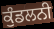
ਕੁੰਡਲਨੀ